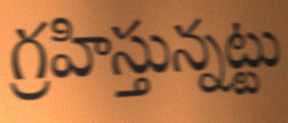
గ్రహిస్తున్నట్టు